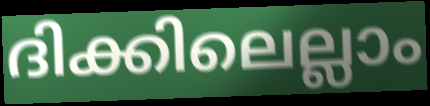
ദിക്കിലെല്ലാം